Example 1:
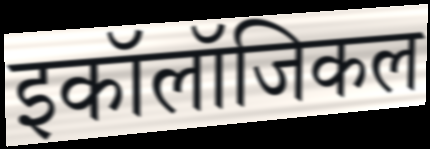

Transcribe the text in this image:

इकॉलॉजिकल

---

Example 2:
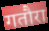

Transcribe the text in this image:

गतौरा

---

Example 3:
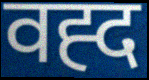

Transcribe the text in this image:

वह्द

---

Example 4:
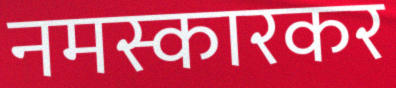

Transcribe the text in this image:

नमस्कारकर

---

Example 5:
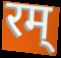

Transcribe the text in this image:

रम्